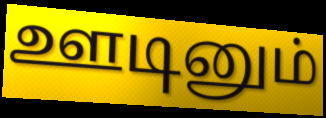
ஊடினும்